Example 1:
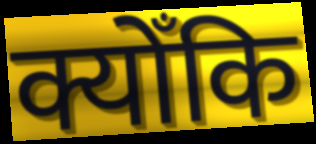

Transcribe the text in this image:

क्योँकि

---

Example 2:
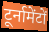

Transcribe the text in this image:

टूर्नामेंटों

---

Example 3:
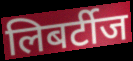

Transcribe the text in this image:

लिबर्टीज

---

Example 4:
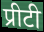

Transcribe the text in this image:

प्रीटी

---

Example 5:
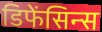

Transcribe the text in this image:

डिफेंसिन्स